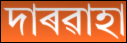
দাৰৱাহা